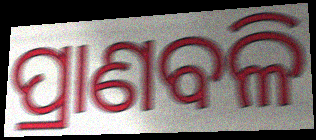
ପ୍ରାଣବଳି